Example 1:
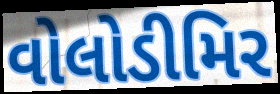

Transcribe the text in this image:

વોલોડીમિર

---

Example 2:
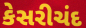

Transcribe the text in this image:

કેસરીચંદ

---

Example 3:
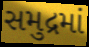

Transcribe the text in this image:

સમુદ્રમાં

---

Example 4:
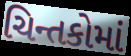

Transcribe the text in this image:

ચિન્તકોમાં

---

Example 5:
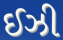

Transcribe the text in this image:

ઈઝી